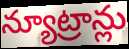
న్యూట్రాన్లు